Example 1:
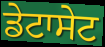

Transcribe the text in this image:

ਡੇਟਾਸੇਟ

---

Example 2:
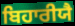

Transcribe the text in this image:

ਬਿਹਾਰੀਯੈ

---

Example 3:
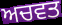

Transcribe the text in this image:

ਅਚਵਤ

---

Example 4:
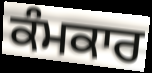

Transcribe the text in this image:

ਕੰਮਕਾਰ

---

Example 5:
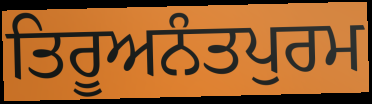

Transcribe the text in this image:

ਤਿਰੂਅਨੰਤਪੁਰਮ